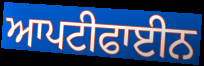
ਆਪਟੀਫਾਈਨ